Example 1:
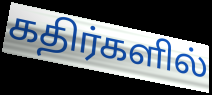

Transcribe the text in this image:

கதிர்களில்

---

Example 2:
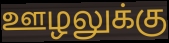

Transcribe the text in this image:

ஊழலுக்கு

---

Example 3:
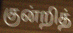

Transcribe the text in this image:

குன்றித்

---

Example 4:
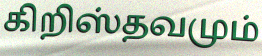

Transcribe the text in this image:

கிறிஸ்தவமும்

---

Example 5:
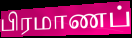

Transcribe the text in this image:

பிரமாணப்